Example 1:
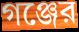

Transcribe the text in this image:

গঞ্জের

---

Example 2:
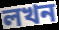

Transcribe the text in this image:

লখন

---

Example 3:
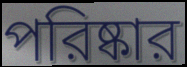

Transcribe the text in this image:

পরিষ্কার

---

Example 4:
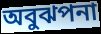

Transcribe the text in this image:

অবুঝপনা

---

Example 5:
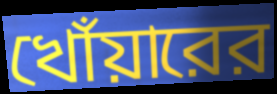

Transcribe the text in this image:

খোঁয়ারের